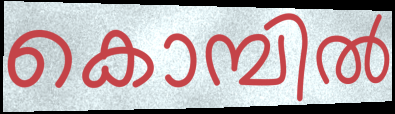
കൊമ്പിൽ